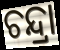
ଚନ୍ଦ୍ରା